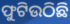
ଫୁଟିଉଠିଛି